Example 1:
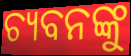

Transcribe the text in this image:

ଚ୍ୟବନଙ୍କୁ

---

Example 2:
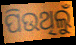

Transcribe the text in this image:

ପିଉଥିଲୁଁ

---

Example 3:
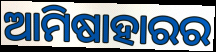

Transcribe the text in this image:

ଆମିଷାହାରର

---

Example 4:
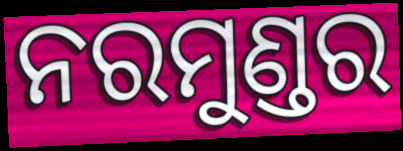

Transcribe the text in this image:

ନରମୁଣ୍ଡର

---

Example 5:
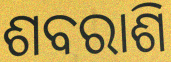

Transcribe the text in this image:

ଶବରାଶି